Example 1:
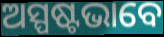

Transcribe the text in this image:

ଅସ୍ପଷ୍ଟଭାବେ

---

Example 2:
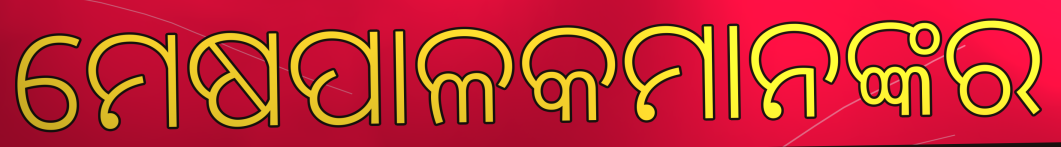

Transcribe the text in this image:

ମେଷପାଳକମାନଙ୍କର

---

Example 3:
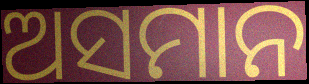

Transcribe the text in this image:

ଅସମାନ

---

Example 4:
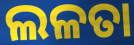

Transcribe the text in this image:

ଲଳତା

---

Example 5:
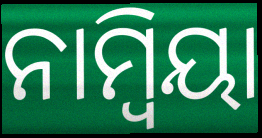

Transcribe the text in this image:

ନାମ୍ୱିୟା